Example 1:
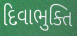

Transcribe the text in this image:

દિવાભુક્તિ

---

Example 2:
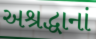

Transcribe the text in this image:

અશ્રદ્ધાનાં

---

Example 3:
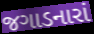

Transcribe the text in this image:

જગાડનારાં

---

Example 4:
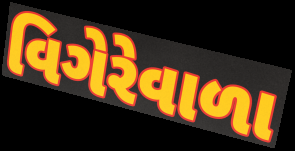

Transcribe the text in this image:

વિગેરેવાળા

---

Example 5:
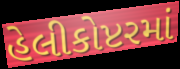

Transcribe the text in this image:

હેલીકોપ્ટરમાં